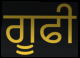
ਗੂਫੀ